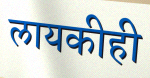
लायकीही